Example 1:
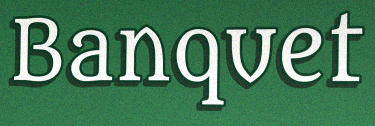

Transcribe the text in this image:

Banquet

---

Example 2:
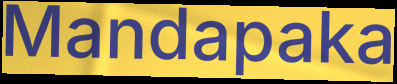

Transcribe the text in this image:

Mandapaka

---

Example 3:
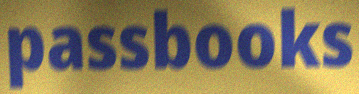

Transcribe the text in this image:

passbooks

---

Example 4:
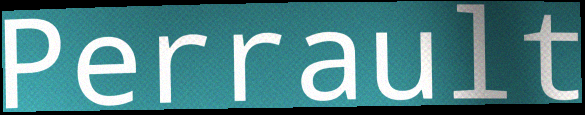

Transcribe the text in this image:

Perrault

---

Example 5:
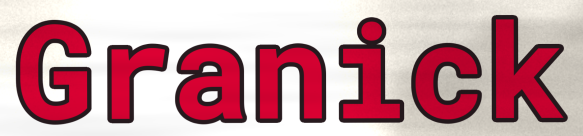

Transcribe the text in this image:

Granick